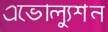
এভোল্যুশন